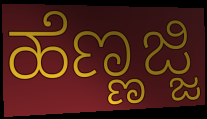
ಹೆಣ್ಣಜ್ಜಿ